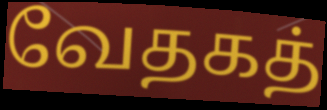
வேதகத்